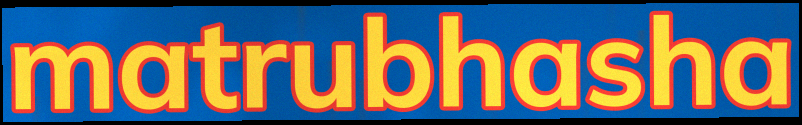
matrubhasha